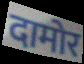
दामोर